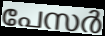
പേസർ